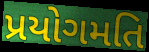
પ્રયોગમતિ